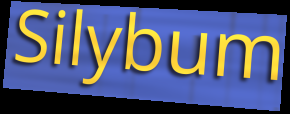
Silybum